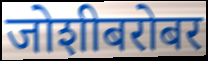
जोशीबरोबर